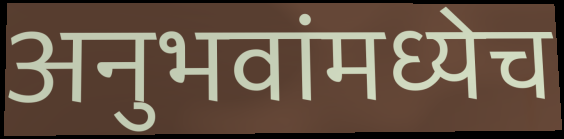
अनुभवांमध्येच